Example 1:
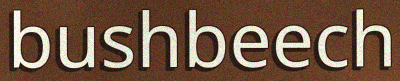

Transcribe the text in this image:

bushbeech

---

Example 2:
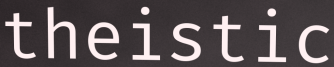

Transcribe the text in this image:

theistic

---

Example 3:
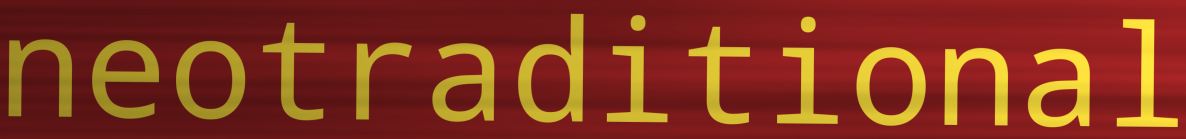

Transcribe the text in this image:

neotraditional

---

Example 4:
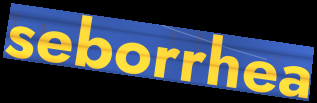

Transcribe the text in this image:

seborrhea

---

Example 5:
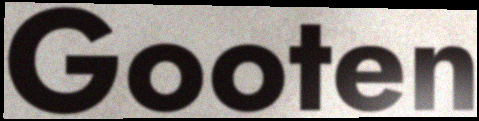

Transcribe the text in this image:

Gooten